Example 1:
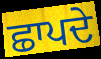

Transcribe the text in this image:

ਛਾਪਦੇ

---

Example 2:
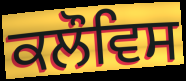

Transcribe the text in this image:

ਕਲੌਵਿਸ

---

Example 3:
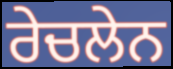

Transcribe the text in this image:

ਰੇਚਲੇਨ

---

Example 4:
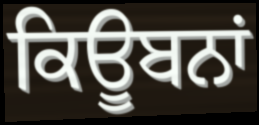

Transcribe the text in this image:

ਕਿਊਬਨਾਂ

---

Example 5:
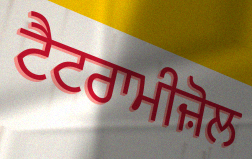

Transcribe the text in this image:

ਟੈਟਰਾਮੀਜ਼ੋਲ